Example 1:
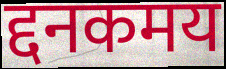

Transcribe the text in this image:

द्दनकमय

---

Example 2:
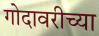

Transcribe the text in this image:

गोदावरीच्या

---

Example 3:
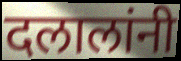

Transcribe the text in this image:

दलालांनी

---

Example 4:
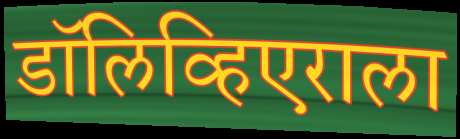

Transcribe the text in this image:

डॉलिव्हिएराला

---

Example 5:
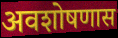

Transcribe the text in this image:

अवशोषणास